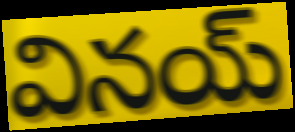
వినయ్